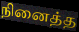
நினைத்த